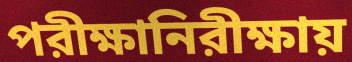
পরীক্ষানিরীক্ষায়